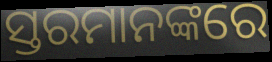
ସ୍ତରମାନଙ୍କରେ